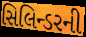
સિલિન્ડરની